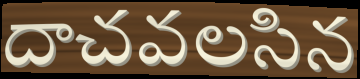
దాచవలసిన